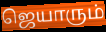
ஜெயாரும்